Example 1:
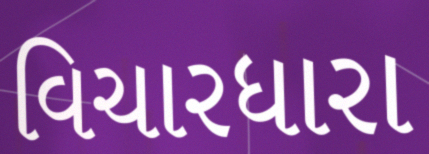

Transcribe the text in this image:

વિચારધારા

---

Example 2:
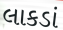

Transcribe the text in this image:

લાકડાં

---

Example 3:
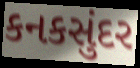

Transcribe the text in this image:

કનકસુંદર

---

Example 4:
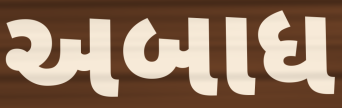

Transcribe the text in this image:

અબાધ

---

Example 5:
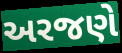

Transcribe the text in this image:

અરજણે